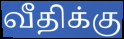
வீதிக்கு